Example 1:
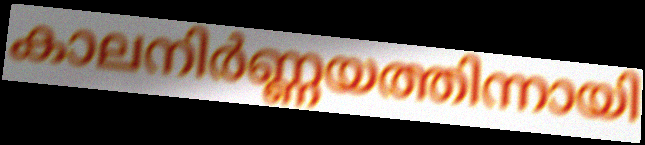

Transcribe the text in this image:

കാലനിർണ്ണയത്തിന്നായി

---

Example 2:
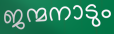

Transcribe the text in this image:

ജന്മനാടും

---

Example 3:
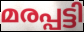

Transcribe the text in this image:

മരപ്പട്ടി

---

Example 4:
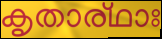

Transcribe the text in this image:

കൃതാര്ഥാഃ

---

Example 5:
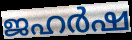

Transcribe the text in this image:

ജഹർഷ